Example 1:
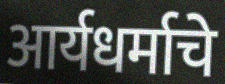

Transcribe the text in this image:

आर्यधर्माचे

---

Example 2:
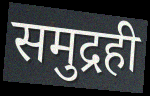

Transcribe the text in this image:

समुद्रही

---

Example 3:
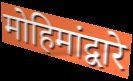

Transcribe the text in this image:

मोहिमांद्वारे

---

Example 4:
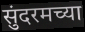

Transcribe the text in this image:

सुंदरमच्या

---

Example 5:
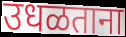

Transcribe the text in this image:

उधळताना